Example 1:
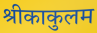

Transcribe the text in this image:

श्रीकाकुलम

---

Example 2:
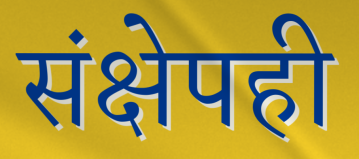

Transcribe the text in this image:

संक्षेपही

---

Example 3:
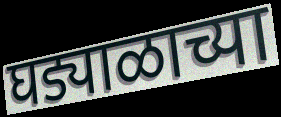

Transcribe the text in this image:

घड्याळाच्या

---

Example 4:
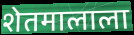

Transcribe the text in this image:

शेतमालाला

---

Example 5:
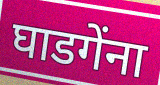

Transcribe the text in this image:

घाडगेंना